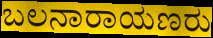
ಬಲನಾರಾಯಣರು